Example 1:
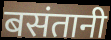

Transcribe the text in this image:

बसंतानी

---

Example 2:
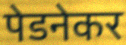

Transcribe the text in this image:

पेडनेकर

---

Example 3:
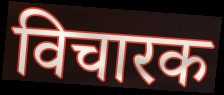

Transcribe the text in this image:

विचारक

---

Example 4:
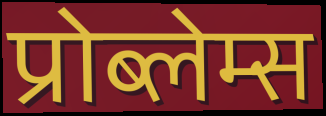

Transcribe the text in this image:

प्रोब्लेम्स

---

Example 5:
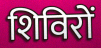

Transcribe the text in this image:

शिविरों